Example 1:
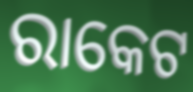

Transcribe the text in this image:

ରାକେଟ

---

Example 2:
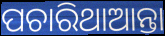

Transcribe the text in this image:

ପଚାରିଥାଆନ୍ତା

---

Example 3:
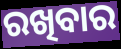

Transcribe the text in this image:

ରଖିବାର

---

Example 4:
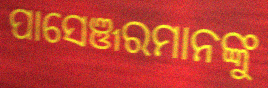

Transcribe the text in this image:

ପାସେଞ୍ଜରମାନଙ୍କୁ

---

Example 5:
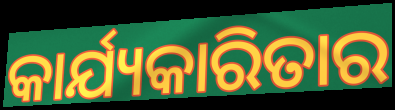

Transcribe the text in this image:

କାର୍ଯ୍ୟକାରିତାର